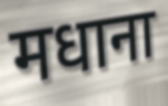
मधाना